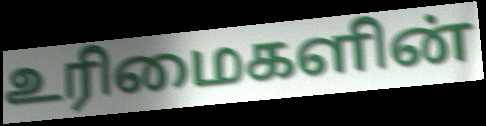
உரிமைகளின்